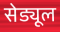
सेड्यूल